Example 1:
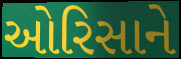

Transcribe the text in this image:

ઓરિસાને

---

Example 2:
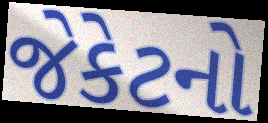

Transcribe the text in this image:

જેકેટનો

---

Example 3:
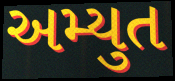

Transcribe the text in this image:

અમ્યુત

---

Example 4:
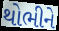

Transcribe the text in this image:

થોભીને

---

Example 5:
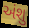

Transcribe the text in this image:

અંશુ